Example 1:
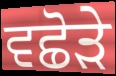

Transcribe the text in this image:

ਵਛੋੜੇ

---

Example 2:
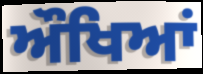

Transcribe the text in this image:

ਔਖਿਆਂ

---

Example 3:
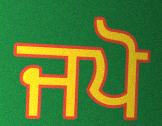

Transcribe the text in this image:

ਜਪੋ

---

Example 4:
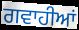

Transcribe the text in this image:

ਗਵਾਹੀਆਂ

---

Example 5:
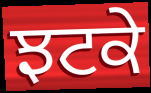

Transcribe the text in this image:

ਝਟਕੇ